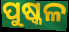
ପୁଷ୍କଳ